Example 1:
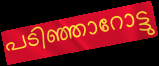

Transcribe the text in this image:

പടിഞ്ഞാറോട്ടു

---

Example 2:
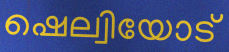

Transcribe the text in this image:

ഷെല്വിയോട്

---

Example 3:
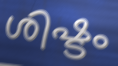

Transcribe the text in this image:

ശിഷ്ടം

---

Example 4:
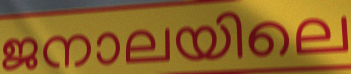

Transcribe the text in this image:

ജനാലയിലെ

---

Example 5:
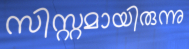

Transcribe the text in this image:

സിസ്റ്റമായിരുന്നു